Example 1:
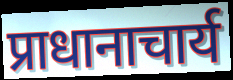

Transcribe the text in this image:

प्राधानाचार्य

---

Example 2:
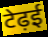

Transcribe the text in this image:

टेढ़ई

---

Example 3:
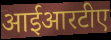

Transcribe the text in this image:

आईआरटीए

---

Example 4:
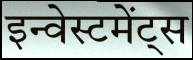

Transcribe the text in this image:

इन्वेस्टमेंट्स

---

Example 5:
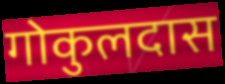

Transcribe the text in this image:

गोकुलदास